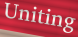
Uniting